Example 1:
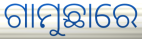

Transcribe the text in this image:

ଗାମୁଛାରେ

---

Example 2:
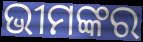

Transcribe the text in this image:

ଭୀମଙ୍କର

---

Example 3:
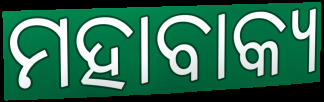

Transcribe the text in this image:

ମହାବାକ୍ୟ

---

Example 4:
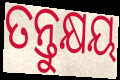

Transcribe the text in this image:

ତନ୍ତୁକ୍ଷୟ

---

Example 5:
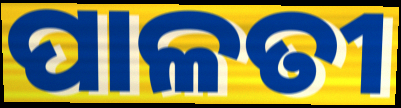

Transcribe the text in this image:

ପାଳତୀ